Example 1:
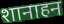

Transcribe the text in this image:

शानाहन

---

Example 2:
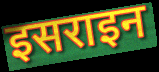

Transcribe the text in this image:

इसराइन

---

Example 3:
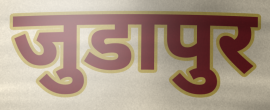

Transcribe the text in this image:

जुडापुर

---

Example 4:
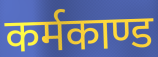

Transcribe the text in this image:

कर्मकाण्ड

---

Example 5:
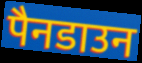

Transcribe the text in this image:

पैनडाउन